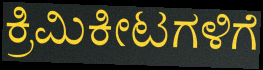
ಕ್ರಿಮಿಕೀಟಗಳಿಗೆ